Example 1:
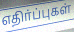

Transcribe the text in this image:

எதிர்ப்புகள்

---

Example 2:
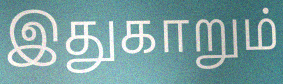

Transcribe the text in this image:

இதுகாறும்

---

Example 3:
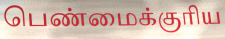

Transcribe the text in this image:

பெண்மைக்குரிய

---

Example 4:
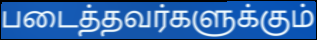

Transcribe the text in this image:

படைத்தவர்களுக்கும்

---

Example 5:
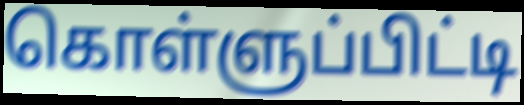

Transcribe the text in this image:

கொள்ளுப்பிட்டி